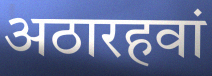
अठारहवां